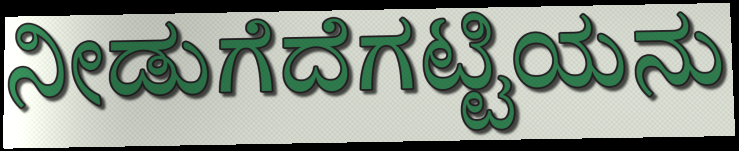
ನೀಡುಗೆದೆಗಟ್ಟಿಯನು